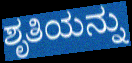
ಶೃತಿಯನ್ನು